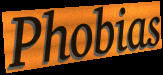
Phobias